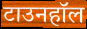
टाउनहॉल